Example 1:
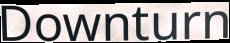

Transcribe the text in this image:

Downturn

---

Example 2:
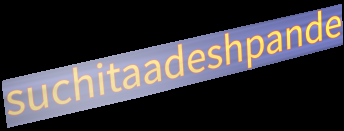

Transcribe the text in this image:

suchitaadeshpande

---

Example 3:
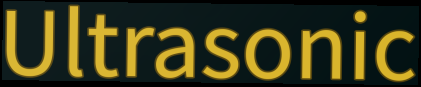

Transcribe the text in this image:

Ultrasonic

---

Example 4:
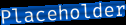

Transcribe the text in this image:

Placeholder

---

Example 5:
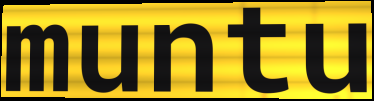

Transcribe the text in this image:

muntu